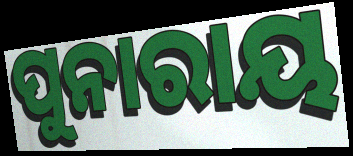
ପୁନାରାୟ